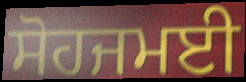
ਸੋਹਜਮਈ